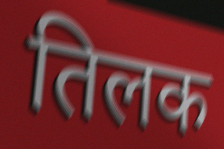
तिलक